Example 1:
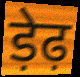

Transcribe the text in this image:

ड़ेढ़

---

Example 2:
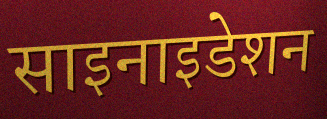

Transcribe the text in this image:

साइनाइडेशन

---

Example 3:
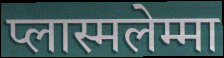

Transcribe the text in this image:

प्लास्मलेम्मा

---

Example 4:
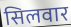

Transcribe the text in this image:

सिलवार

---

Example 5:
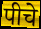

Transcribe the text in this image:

पीचे